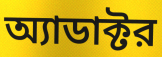
অ্যাডাক্টর